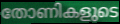
തോണികളുടെ